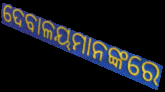
ଦେବାଳୟମାନଙ୍କରେ